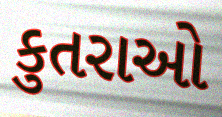
કુતરાઓ